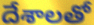
దేశాలతో